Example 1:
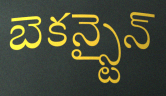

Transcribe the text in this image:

బెకన్స్టైన్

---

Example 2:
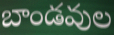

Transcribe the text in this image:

బాండవుల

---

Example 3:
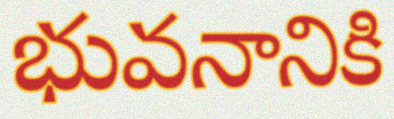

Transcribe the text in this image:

భువనానికి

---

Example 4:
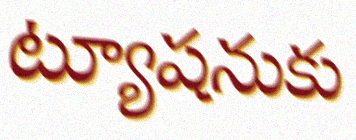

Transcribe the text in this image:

ట్యూషనుకు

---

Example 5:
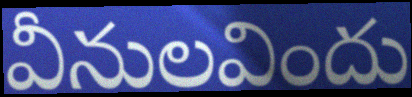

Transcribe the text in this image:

వీనులవిందు